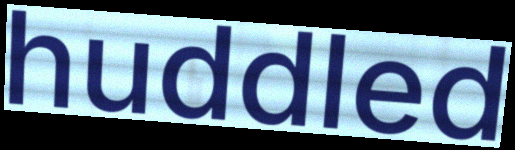
huddled